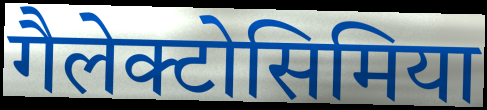
गैलेक्टोसिमिया